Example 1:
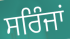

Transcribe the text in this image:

ਸਰਿੰਜਾਂ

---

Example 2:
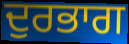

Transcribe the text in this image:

ਦੁਰਭਾਗ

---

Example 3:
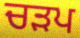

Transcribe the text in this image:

ਚੜਪ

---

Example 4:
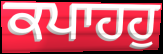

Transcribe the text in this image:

ਕਪਾਹਹੁ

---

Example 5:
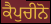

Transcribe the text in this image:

ਕੈਪੁਚੀਨੋ